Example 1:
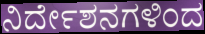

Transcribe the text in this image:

ನಿರ್ದೇಶನಗಳಿಂದ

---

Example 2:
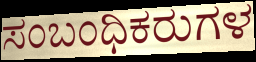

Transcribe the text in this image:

ಸಂಬಂಧಿಕರುಗಳ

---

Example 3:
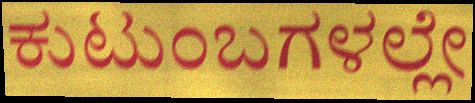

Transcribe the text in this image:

ಕುಟುಂಬಗಳಲ್ಲೇ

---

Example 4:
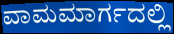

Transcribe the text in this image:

ವಾಮಮಾರ್ಗದಲ್ಲಿ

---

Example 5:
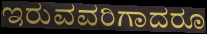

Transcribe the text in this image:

ಇರುವವರಿಗಾದರೂ